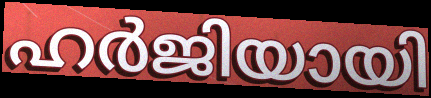
ഹർജിയായി